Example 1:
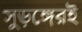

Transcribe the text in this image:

সুড়ঙ্গেরই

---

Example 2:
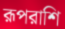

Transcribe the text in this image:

রূপরাশি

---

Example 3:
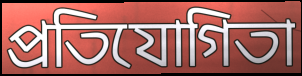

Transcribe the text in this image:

প্রতিযোগিতা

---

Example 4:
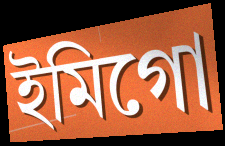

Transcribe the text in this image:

ইমিগো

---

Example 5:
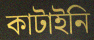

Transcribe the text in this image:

কাটাইনি